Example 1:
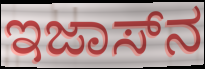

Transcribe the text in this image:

ಇಜಾಸ್‌ನ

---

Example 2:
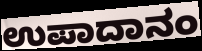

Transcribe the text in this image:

ಉಪಾದಾನಂ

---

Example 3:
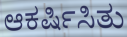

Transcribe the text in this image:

ಆಕರ್ಷಿಸಿತು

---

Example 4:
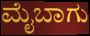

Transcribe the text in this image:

ಮೈಬಾಗು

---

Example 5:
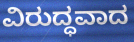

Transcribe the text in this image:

ವಿರುದ್ಧವಾದ